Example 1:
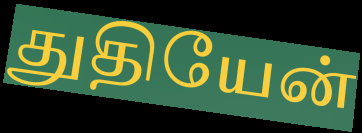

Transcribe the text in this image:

துதியேன்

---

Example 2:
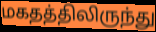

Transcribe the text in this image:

மகதத்திலிருந்து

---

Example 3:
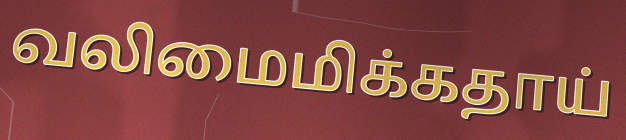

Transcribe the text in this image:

வலிமைமிக்கதாய்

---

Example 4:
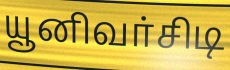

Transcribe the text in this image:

யூனிவர்சிடி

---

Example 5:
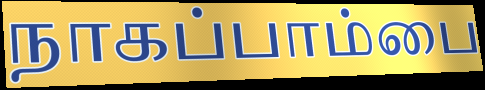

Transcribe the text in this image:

நாகப்பாம்பை